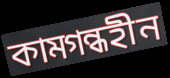
কামগন্ধহীন